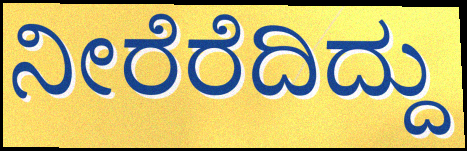
ನೀರೆರೆದಿದ್ದು